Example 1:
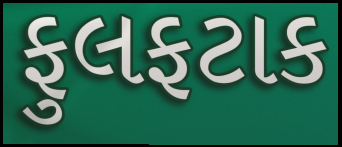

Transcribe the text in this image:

ફુલફટાક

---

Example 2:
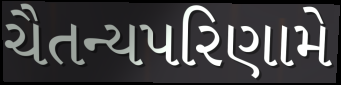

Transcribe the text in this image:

ચૈતન્યપરિણામે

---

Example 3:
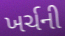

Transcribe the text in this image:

ખર્ચની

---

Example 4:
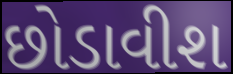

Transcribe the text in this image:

છોડાવીશ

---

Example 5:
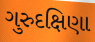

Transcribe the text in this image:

ગુરુદક્ષિણા